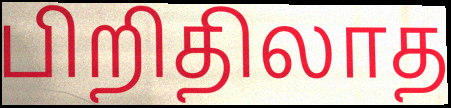
பிறிதிலாத